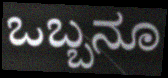
ಒಬ್ಬನೂ